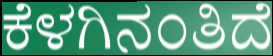
ಕೆಳಗಿನಂತಿದೆ